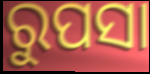
ରୁପସା